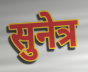
सुनेत्र